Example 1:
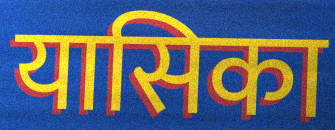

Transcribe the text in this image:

यासिका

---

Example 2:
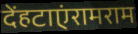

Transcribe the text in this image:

देंहटाएंरामराम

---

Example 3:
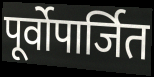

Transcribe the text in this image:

पूर्वोपार्जित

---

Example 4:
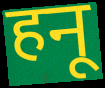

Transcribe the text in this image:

हनू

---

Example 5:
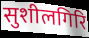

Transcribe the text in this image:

सुशीलगिरि